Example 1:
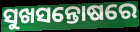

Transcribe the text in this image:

ସୁଖସନ୍ତୋଷରେ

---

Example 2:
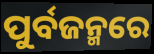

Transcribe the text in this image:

ପୁର୍ବଜନ୍ମରେ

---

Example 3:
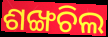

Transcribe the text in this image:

ଶଙ୍ଖଚିଲ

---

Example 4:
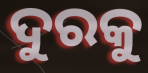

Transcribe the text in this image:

ଦୁରକୁ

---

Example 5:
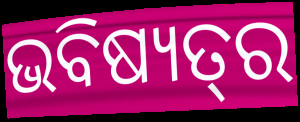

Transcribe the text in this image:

ଭବିଷ୍ୟତ୍‌ର